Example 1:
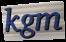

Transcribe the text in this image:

kgm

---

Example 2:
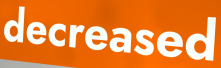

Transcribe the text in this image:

decreased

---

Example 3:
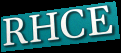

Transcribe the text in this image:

RHCE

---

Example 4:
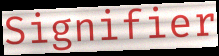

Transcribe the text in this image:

Signifier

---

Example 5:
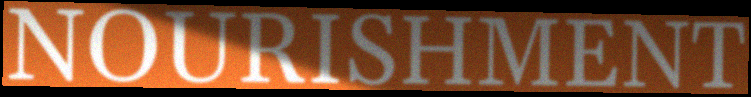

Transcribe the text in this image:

NOURISHMENT